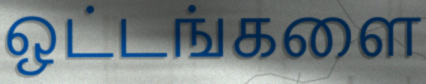
ஒட்டங்களை